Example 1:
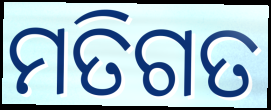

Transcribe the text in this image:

ମତିଗତ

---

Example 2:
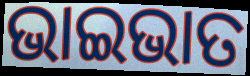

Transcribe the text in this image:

ଭାଇଭାତ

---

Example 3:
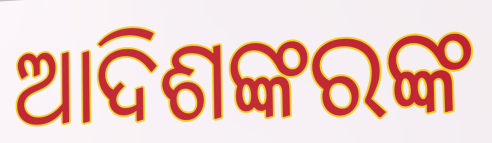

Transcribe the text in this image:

ଆଦିଶଙ୍କରଙ୍କ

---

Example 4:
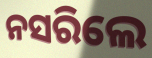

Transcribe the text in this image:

ନସରିଲେ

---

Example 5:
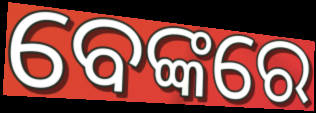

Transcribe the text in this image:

ବେଙ୍କରେ